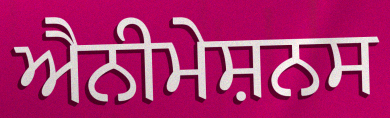
ਐਨੀਮੇਸ਼ਨਸ